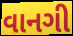
વાનગી